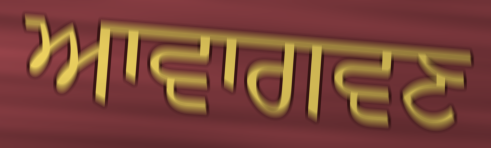
ਆਵਾਗਵਣ